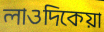
লাওদিকেয়া